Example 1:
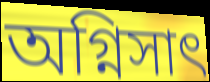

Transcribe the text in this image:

অগ্নিসাৎ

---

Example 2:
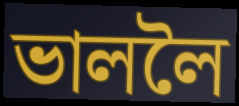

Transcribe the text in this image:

ভাললৈ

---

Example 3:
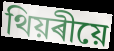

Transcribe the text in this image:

থিয়ৰীয়ে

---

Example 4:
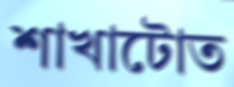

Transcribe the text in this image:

শাখাটোত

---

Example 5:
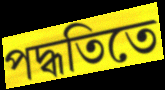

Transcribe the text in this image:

পদ্ধতিতে